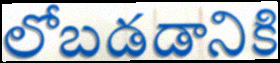
లోబడడానికి